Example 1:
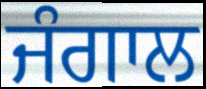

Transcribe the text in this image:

ਜੰਗਾਲ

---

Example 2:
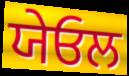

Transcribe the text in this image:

ਯੇਓਲ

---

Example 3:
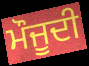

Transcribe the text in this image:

ਮੌਜੂਦੀ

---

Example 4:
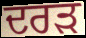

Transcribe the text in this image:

ਦਰੜ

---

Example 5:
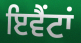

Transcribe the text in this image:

ਇਵੈਂਟਾਂ